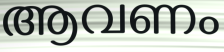
ആവണം